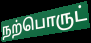
நற்பொருட்